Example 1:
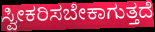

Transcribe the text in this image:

ಸ್ವೀಕರಿಸಬೇಕಾಗುತ್ತದೆ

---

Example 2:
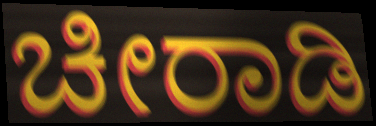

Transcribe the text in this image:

ಚೀರಾಡಿ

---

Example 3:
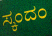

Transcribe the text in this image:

ಸ್ಕಂದಂ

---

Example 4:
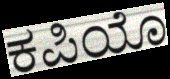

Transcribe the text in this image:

ಕಪಿಯೊ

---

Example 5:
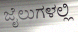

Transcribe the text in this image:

ಜೈಲುಗಳಲ್ಲಿ